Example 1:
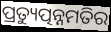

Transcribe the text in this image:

ପ୍ରତ୍ୟୁତ୍ପନ୍ନମତିର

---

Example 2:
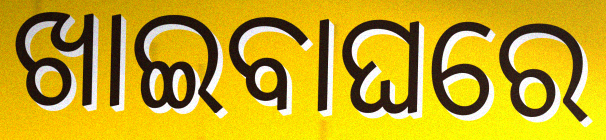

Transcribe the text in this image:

ଖାଇବାଘରେ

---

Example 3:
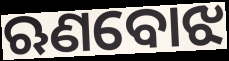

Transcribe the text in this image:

ଋଣବୋଝ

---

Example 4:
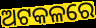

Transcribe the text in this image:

ଅଟକଳରେ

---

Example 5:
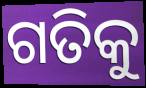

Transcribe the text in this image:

ଗତିକୁ